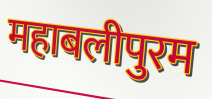
महाबलीपुरम